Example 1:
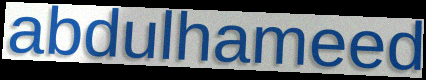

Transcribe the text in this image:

abdulhameed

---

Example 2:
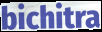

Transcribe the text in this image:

bichitra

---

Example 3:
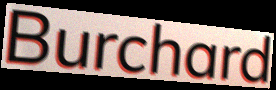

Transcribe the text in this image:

Burchard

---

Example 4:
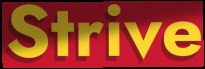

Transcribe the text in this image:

Strive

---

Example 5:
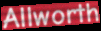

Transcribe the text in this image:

Allworth